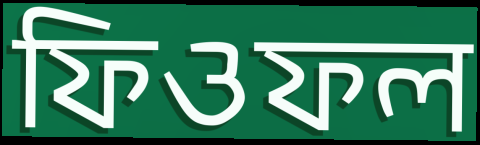
ফিওফল